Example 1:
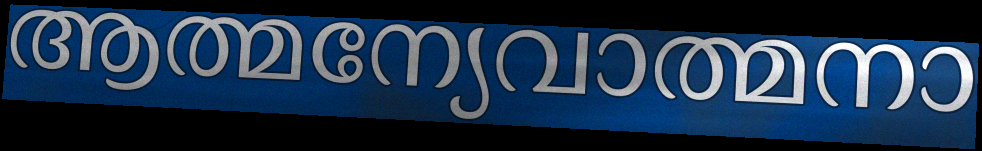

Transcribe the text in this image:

ആത്മന്യേവാത്മനാ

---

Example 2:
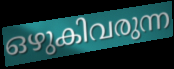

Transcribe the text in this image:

ഒഴുകിവരുന്ന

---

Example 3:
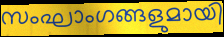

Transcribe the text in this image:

സംഘാംഗങ്ങളുമായി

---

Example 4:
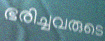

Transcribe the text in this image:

ഭരിച്ചവരുടെ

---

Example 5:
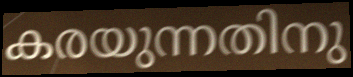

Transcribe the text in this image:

കരയുന്നതിനു